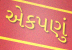
એકપણું